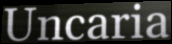
Uncaria